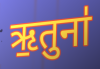
ऋ॒तुना॑